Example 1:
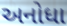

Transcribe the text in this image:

અનોધા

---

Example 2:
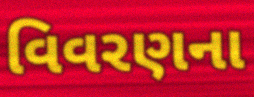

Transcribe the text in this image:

વિવરણના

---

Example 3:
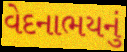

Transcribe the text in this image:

વેદનાભયનું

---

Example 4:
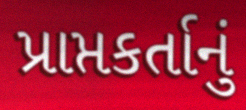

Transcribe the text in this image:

પ્રાપ્તકર્તાનું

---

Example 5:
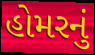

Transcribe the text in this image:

હોમરનું